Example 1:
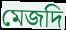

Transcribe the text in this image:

মেজদি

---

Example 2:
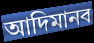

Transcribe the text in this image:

আদিমানব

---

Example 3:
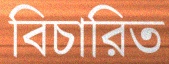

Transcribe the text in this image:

বিচারিত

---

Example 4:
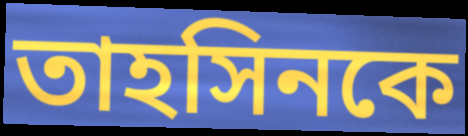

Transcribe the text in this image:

তাহসিনকে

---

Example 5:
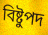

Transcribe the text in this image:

বিষ্টুপদ